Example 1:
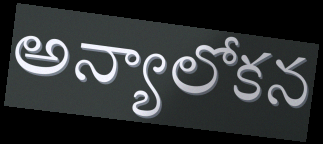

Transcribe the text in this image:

అన్యాలోకన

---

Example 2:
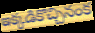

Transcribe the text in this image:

ఇక్కడికొచ్చినంక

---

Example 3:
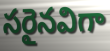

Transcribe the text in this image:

సరైనవిగా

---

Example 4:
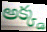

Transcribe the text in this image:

అక్క్డ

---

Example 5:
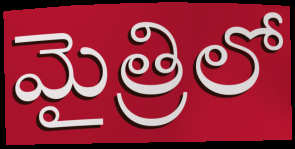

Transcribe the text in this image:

మైత్రిలో